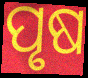
ପୃଷ